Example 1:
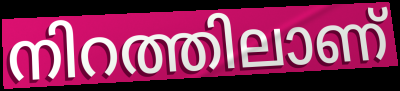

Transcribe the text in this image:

നിറത്തിലാണ്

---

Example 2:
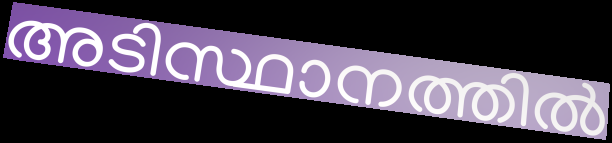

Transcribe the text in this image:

അടിസ്ഥാനത്തിൽ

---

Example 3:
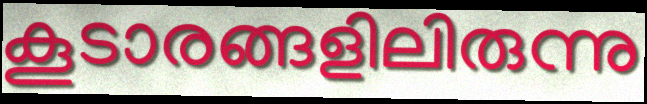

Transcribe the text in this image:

കൂടാരങ്ങളിലിരുന്നു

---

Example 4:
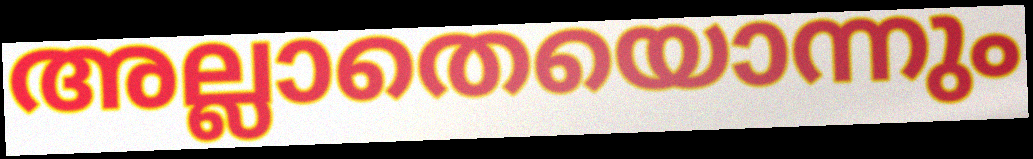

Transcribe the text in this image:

അല്ലാതെയൊന്നും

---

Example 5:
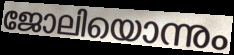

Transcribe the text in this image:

ജോലിയൊന്നും